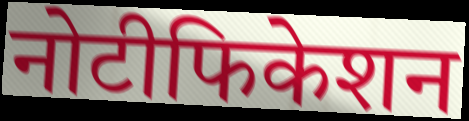
नोटीफिकेशन